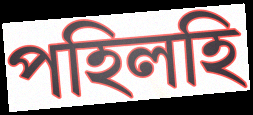
পহিলহি